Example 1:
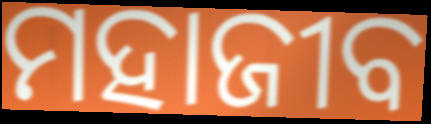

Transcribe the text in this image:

ମହାଜୀବ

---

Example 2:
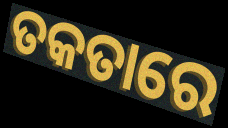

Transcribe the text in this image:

ତକତାରେ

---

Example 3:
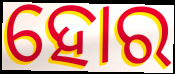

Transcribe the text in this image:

ହୋର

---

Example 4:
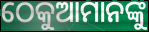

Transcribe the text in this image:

ଠେକୁଆମାନଙ୍କୁ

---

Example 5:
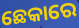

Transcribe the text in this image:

ଛେକାରେ